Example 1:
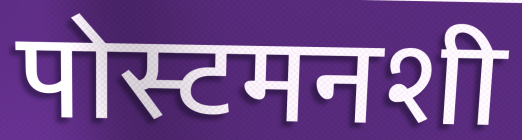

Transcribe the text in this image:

पोस्टमनशी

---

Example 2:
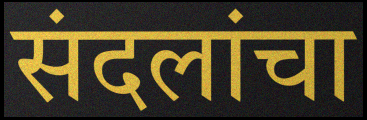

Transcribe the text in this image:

संदलांचा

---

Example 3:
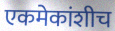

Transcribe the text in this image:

एकमेकांशीच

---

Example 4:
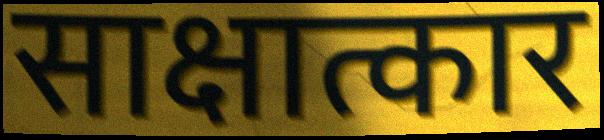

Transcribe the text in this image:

साक्षात्कार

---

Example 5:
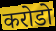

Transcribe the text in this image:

करोडो